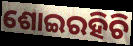
ଶୋଇରହିଚି